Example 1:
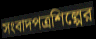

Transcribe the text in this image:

সংবাদপত্রশিল্পের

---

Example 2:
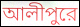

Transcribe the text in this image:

আলীপুরে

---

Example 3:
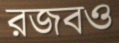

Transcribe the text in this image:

রজবও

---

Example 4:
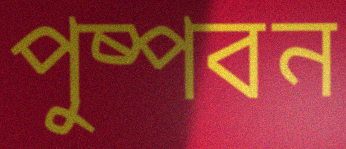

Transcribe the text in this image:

পুষ্পবন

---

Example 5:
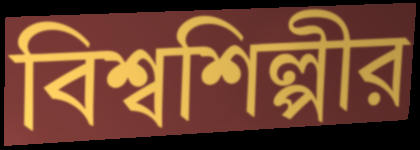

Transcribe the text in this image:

বিশ্বশিল্পীর